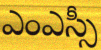
ఎంఎస్సీ